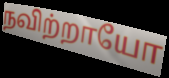
நவிற்றாயோ